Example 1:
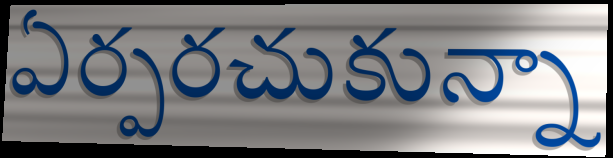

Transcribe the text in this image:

ఏర్పరచుకున్నా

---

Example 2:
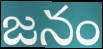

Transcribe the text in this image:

జనం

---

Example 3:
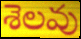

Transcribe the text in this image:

శెలవు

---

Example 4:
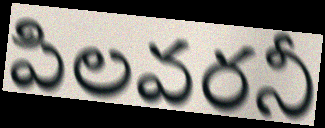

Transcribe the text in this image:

పిలవరనీ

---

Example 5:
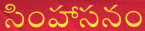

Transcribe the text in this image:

సింహాసనం